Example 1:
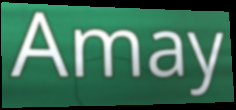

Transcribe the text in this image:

Amay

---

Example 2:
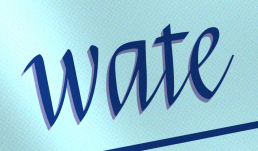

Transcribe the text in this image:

wate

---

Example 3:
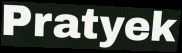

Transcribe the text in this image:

Pratyek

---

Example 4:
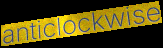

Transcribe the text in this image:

anticlockwise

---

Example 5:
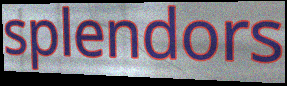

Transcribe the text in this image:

splendors